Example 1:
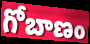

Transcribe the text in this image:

గోబాణం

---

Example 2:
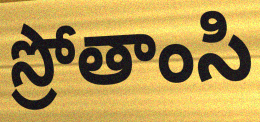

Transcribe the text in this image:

స్రోతాంసి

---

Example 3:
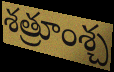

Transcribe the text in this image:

శత్రూంశ్చ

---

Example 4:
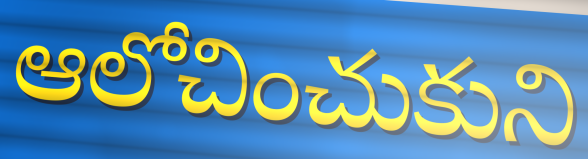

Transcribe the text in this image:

ఆలోచించుకుని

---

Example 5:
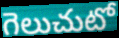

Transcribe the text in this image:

గెలుచుటో